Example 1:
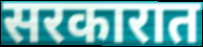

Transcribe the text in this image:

सरकारात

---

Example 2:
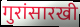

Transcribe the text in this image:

गुरांसारखी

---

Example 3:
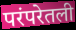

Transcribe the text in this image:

परंपरेतली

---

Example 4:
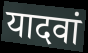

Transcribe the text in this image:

यादवां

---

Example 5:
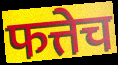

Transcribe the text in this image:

फत्तेच